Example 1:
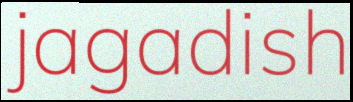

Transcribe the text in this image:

jagadish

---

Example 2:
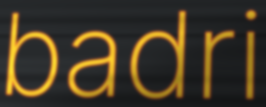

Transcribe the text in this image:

badri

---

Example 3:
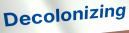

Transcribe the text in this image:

Decolonizing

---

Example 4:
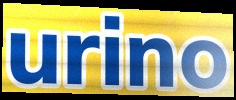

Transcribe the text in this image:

urino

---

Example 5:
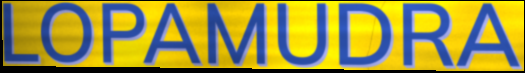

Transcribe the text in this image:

LOPAMUDRA